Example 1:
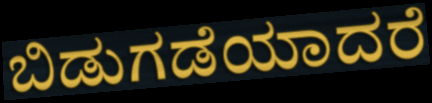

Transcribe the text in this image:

ಬಿಡುಗಡೆಯಾದರೆ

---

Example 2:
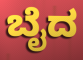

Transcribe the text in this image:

ಬೈದ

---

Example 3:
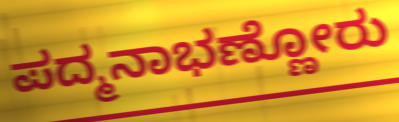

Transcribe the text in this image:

ಪದ್ಮನಾಭಣ್ಣೋರು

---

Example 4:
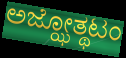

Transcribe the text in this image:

ಅಜ್ಝೋತ್ಥಟಂ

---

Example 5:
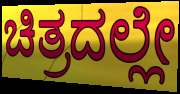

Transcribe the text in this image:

ಚಿತ್ರದಲ್ಲೇ